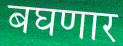
बघणार